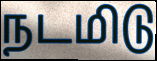
நடமிடு